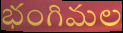
భంగిమల